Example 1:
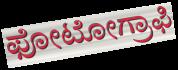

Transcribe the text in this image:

ಫೋಟೋಗ್ರಾಫಿ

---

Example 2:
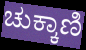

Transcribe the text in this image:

ಚುಕ್ಕಾಣಿ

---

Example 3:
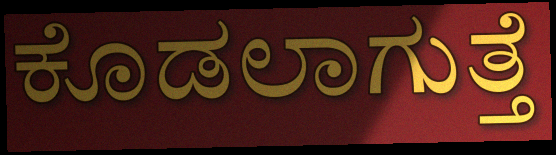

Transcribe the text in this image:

ಕೊಡಲಾಗುತ್ತೆ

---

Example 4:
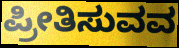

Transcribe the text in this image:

ಪ್ರೀತಿಸುವವ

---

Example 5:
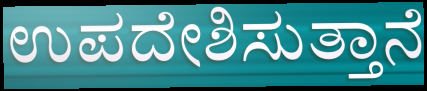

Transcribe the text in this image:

ಉಪದೇಶಿಸುತ್ತಾನೆ